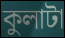
কুলাটা